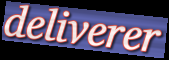
deliverer